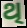
ଥି